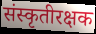
संस्कृतीरक्षक